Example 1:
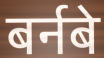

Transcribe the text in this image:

बर्नबे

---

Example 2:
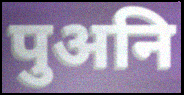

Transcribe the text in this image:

पुअनि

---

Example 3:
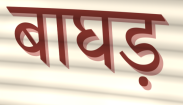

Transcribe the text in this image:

बाघड़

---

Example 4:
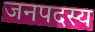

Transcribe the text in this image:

जनपदस्य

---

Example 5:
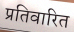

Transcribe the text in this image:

प्रतिवारित